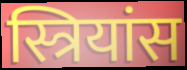
स्त्रियांस